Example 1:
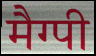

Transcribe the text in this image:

मैग्पी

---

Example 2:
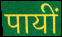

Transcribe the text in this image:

पायीं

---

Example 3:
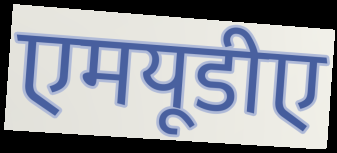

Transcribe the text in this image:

एमयूडीए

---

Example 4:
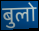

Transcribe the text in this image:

बुलो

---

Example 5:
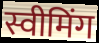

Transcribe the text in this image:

स्‍वीमिंग